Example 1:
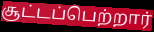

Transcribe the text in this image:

சூட்டப்பெற்றார்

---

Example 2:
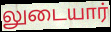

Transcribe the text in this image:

லுடையார்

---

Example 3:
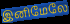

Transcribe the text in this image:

இனிமேலே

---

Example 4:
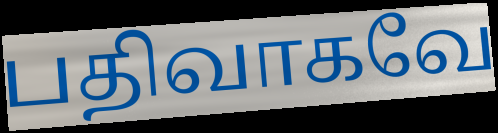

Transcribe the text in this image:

பதிவாகவே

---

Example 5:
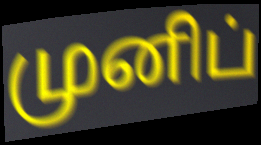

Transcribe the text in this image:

முனிப்